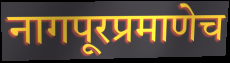
नागपूरप्रमाणेच